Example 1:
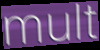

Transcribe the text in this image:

mult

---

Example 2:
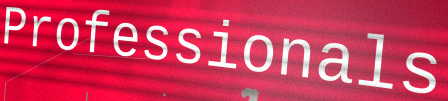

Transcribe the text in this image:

Professionals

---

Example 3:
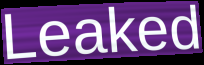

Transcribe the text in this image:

Leaked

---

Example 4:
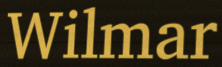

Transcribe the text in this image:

Wilmar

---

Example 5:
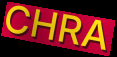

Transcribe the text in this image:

CHRA